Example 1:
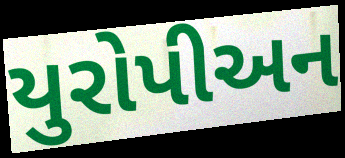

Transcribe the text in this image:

યુરોપીઅન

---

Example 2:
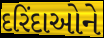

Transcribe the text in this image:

દરિંદાઓને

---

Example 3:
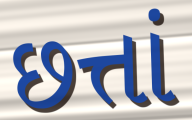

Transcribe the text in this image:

છત્તાં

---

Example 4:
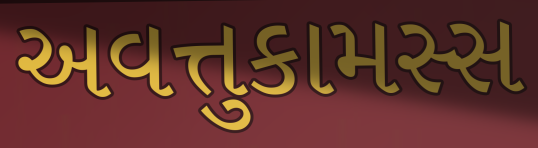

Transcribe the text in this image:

અવત્તુકામસ્સ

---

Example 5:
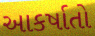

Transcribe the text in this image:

આકર્ષાતો